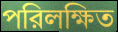
পরিলক্ষিত